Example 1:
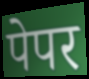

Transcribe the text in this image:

पेपर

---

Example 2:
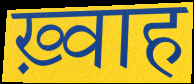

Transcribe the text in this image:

ख़्वाह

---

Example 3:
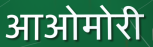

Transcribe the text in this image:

आओमोरी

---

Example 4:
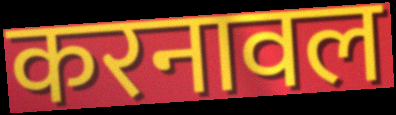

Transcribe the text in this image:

करनावल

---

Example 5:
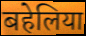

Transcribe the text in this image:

बहेलिया